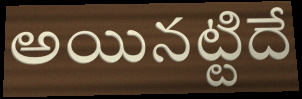
అయినట్టిదే